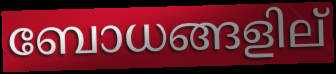
ബോധങ്ങളില്